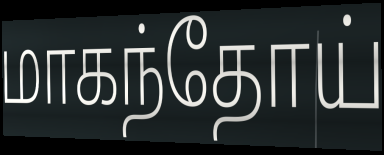
மாகந்தோய்